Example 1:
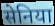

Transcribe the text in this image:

सेनिया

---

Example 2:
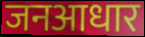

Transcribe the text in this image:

जनआधार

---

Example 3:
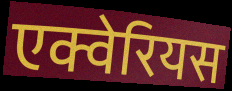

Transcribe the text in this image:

एक्वेरियस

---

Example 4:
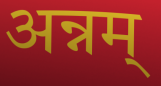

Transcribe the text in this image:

अन्नम्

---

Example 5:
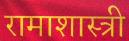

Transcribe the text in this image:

रामाशास्त्री